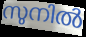
സുനിൽ